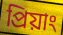
প্রিয়াং